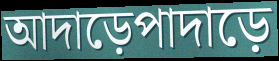
আদাড়েপাদাড়ে